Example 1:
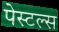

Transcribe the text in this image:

पेस्टल्स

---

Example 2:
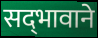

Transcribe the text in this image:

सद्‌भावाने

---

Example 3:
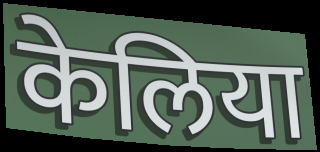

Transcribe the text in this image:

केलिया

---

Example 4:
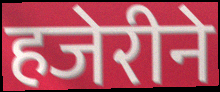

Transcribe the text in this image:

हजेरीने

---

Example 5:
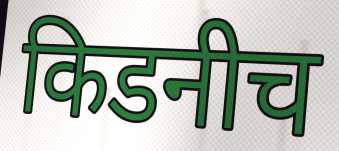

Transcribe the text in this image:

किडनीच